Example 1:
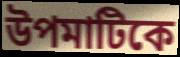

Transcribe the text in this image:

উপমাটিকে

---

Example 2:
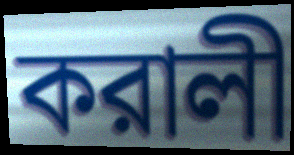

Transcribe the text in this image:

করালী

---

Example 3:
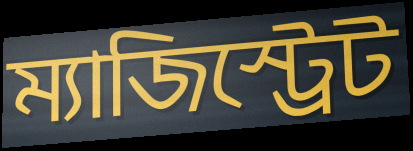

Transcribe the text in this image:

ম্যাজিস্ট্রেট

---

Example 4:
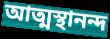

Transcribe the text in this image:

আত্মস্থানন্দ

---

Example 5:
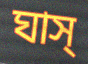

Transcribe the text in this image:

ঘাস্